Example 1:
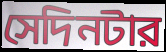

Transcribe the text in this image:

সেদিনটার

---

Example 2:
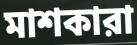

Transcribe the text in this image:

মাশকারা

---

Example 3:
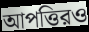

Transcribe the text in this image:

আপত্তিরও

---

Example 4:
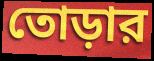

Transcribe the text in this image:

তোড়ার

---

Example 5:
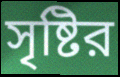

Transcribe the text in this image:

সৃষ্টির